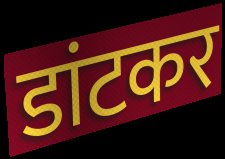
डांटकर